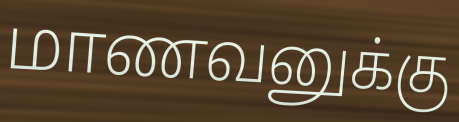
மாணவனுக்கு